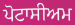
ਪੋਟਾਸੀਅਮ